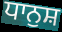
ਧਾਨੁਸ਼